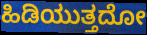
ಹಿಡಿಯುತ್ತದೋ